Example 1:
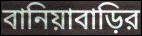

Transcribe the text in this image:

বানিয়াবাড়ির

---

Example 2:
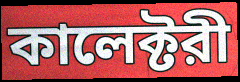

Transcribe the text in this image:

কালেক্টরী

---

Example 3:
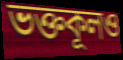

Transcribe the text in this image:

ভক্তকূলও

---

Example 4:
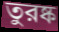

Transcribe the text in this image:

তুরষ্ক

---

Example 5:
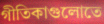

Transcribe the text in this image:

গীতিকাগুলোতে